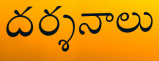
దర్శనాలు